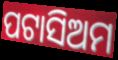
ପଟାସିଅମ